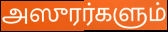
அஸுரர்களும்